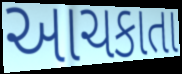
આચકાતા